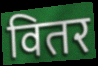
वितर